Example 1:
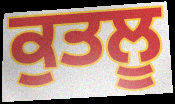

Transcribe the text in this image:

ਕੁਤਲੂ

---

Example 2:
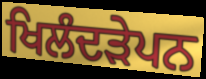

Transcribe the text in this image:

ਖਿਲੰਦੜੇਪਨ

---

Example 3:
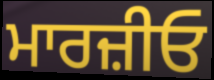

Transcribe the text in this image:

ਮਾਰਜ਼ੀਓ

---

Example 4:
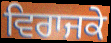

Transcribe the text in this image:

ਵਿਰਾਜਕੇ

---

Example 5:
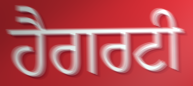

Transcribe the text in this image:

ਹੈਗਰਟੀ